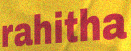
rahitha